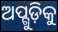
ଅପ୍ଗୁଡ଼ିକୁ